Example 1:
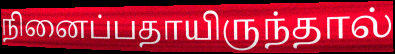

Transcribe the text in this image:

நினைப்பதாயிருந்தால்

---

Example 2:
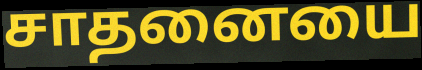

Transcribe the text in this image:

சாதனையை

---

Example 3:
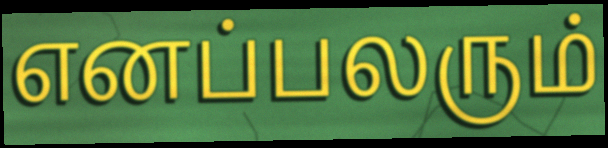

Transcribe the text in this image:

எனப்பலரும்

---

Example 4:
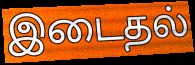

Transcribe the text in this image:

இடைதல்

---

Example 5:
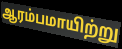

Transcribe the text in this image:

ஆரம்பமாயிற்று